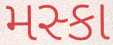
મસ્કા